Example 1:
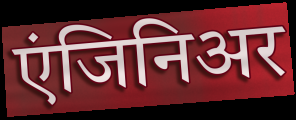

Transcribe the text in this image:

एंजिनिअर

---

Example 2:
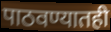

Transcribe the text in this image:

पाठवण्यातही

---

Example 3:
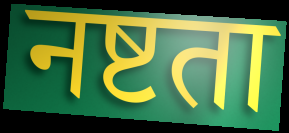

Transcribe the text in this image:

नष्टता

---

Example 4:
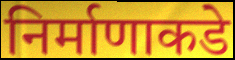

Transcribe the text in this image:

निर्माणाकडे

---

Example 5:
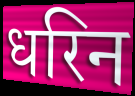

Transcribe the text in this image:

धरिन